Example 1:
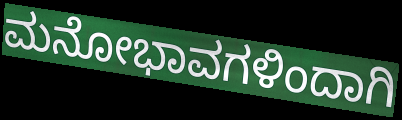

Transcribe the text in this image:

ಮನೋಭಾವಗಳಿಂದಾಗಿ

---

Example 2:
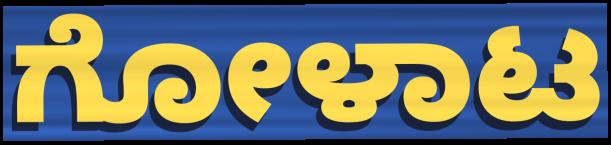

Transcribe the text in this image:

ಗೋಳಾಟ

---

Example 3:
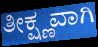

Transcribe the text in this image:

ತೀಕ್ಷ್ಣವಾಗಿ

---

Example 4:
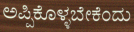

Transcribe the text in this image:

ಅಪ್ಪಿಕೊಳ್ಳಬೇಕೆಂದು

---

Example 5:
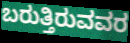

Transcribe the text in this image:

ಬರುತ್ತಿರುವವರ